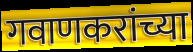
गवाणकरांच्या